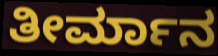
ತೀರ್ಮಾನ